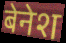
बेनेश